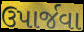
ઉપાર્જવા